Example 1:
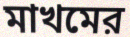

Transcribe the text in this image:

মাখমের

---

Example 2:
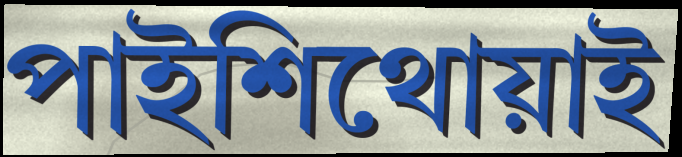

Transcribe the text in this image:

পাইশিথোয়াই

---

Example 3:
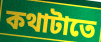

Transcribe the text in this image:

কথাটাতে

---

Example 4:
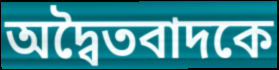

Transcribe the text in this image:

অদ্বৈতবাদকে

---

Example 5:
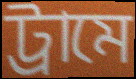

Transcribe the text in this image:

ট্রামে